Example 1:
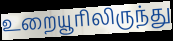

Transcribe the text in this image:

உறையூரிலிருந்து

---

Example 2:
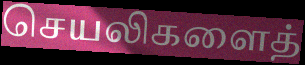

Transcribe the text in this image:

செயலிகளைத்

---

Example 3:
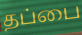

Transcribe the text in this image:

தப்பை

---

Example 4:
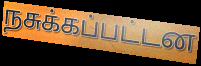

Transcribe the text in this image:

நசுக்கப்பட்டன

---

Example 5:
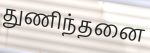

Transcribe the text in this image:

துணிந்தனை